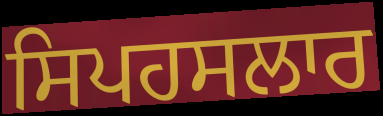
ਸਿਪਹਸਲਾਰ